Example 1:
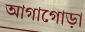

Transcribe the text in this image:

আগাগোড়া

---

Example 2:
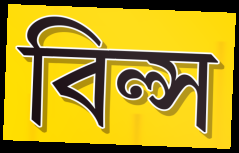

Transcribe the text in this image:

বিল্স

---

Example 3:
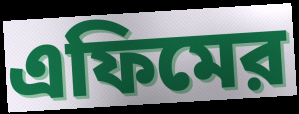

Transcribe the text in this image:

এফিমের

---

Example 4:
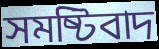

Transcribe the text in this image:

সমষ্টিবাদ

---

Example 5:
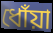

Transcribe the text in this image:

ধোঁয়া